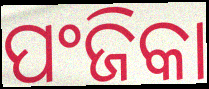
ପଂଜିକା